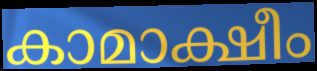
കാമാക്ഷീം